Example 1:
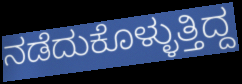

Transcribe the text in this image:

ನಡೆದುಕೊಳ್ಳುತ್ತಿದ್ದ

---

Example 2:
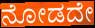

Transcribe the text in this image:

ನೋಡದೇ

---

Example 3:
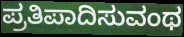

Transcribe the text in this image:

ಪ್ರತಿಪಾದಿಸುವಂಥ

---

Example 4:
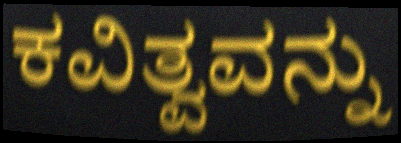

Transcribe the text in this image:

ಕವಿತ್ವವನ್ನು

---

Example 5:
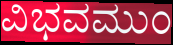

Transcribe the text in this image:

ವಿಭವಮುಂ